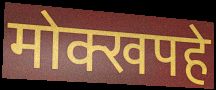
मोक्खपहे